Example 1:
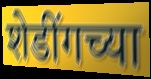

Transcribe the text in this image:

शेडींगच्या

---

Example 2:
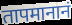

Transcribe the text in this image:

तापमानानं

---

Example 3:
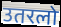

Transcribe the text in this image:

उतरलो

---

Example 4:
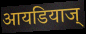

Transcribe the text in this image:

आयडियाज्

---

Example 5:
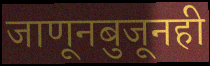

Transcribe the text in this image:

जाणूनबुजूनही